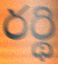
రర్థి